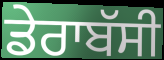
ਡੇਰਾਬੱਸੀ